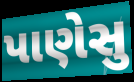
પાણેસુ